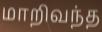
மாறிவந்த